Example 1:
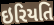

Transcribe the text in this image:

ઇરિયતિ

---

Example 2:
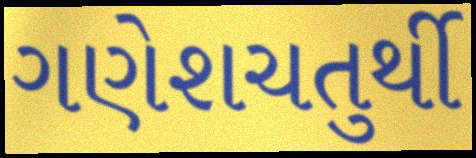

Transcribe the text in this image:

ગણેશચતુર્થી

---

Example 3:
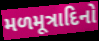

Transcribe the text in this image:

મળમૂત્રાદિનો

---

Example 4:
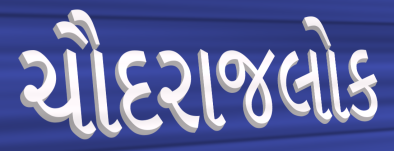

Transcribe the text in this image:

ચૌદરાજલોક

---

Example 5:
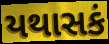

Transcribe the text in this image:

યથાસકં